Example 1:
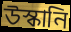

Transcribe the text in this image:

উস্কানি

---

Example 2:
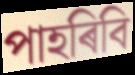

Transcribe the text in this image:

পাহৰিবি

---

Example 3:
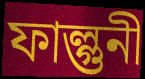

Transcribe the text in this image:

ফাল্গুনী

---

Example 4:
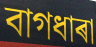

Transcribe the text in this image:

বাগধাৰা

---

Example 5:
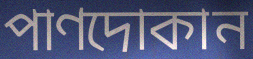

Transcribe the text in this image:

পাণদোকান